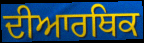
ਦੀਆਰਥਿਕ